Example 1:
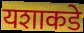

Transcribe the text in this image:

यशाकडे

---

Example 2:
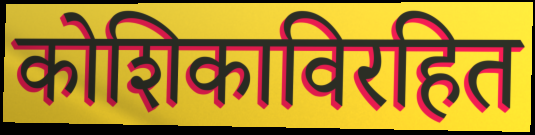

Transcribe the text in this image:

कोशिकाविरहित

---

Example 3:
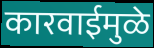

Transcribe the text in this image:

कारवाईमुळे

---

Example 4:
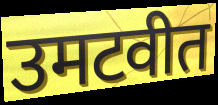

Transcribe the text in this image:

उमटवीत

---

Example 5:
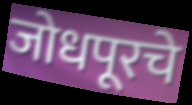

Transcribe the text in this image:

जोधपूरचे